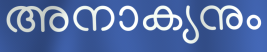
അനാക്യനും